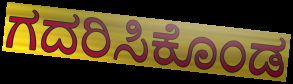
ಗದರಿಸಿಕೊಂಡ